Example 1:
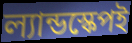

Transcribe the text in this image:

ল্যান্ডস্কেপই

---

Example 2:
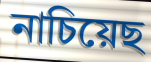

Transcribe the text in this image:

নাচিয়েছ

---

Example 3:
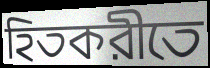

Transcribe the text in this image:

হিতকরীতে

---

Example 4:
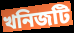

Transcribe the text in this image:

খনিজটি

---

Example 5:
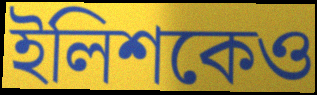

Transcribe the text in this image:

ইলিশকেও